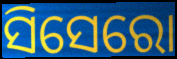
ସିସେରୋ